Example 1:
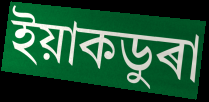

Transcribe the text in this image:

ইয়াকডুৰা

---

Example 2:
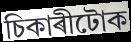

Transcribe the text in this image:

চিকাৰীটোক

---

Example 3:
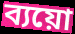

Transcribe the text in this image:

ব্যয়ো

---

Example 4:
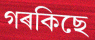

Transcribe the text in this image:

গৰকিছে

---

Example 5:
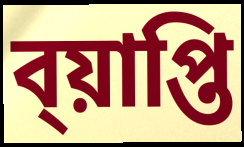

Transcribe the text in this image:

ব্য়াপ্তি